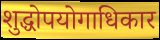
शुद्धोपयोगाधिकार